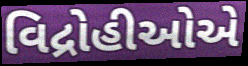
વિદ્રોહીઓએ